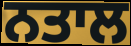
ਨਤਾਲ